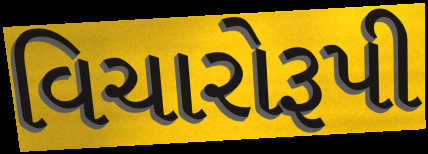
વિચારોરૂપી